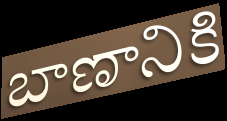
బాణానికి